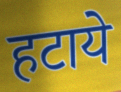
हटाये